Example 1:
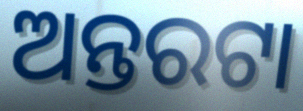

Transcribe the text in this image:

ଅନ୍ତରଟା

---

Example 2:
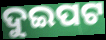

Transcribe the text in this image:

ଦୁଇପଟ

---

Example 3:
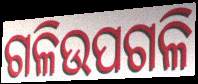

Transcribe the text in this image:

ଗଳିଉପଗଳି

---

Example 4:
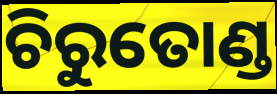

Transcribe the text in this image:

ଚିରୁତୋଣ୍ଡ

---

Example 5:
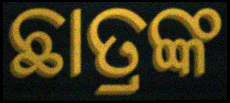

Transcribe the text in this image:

ଛାତ୍ରଙ୍କ